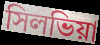
সিলভিয়া